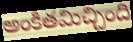
అంకితమిచ్చింది